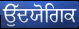
ਉੱਦਯੋਗਿਕ